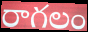
రాగలం